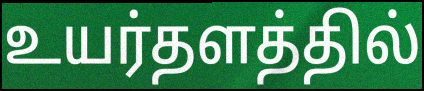
உயர்தளத்தில்